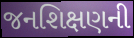
જનશિક્ષણની